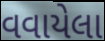
વવાયેલા